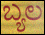
ಬ್ಯಲ